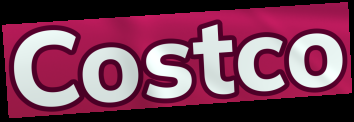
Costco